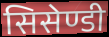
सिसेण्डी